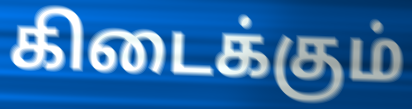
கிடைக்கும்